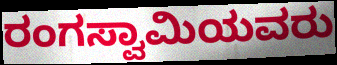
ರಂಗಸ್ವಾಮಿಯವರು